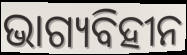
ଭାଗ୍ୟବିହୀନ